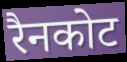
रैनकोट